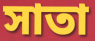
সাতা